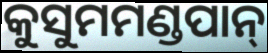
କୁସୁମମଣ୍ଡପାନ୍